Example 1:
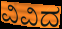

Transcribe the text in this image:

ವಿವಿದ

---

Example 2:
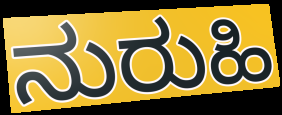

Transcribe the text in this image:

ನುರುಹಿ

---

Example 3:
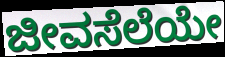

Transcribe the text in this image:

ಜೀವಸೆಲೆಯೇ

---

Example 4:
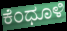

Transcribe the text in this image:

ಕೆಂಧೂಳಿ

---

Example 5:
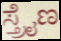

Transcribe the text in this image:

ಸ್ತ್ರೈಣ